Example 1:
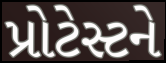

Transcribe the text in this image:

પ્રોટેસ્ટને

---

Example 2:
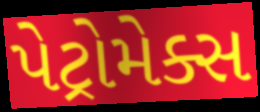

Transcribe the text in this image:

પેટ્રોમેક્સ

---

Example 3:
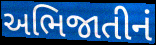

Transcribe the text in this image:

અભિજાતીનં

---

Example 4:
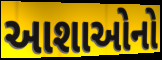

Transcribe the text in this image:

આશાઓનો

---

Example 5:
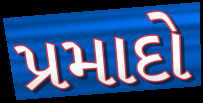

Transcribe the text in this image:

પ્રમાદો